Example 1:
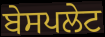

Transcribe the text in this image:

ਬੇਸਪਲੇਟ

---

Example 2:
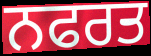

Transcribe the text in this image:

ਨਫਰਤ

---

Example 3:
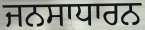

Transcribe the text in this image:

ਜਨਸਾਧਾਰਨ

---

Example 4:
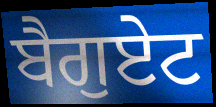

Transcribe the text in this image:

ਬੈਗੁਏਟ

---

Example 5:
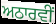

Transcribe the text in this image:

ਅਠਾਰਵੀਂ